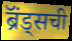
ब्रॅंड्सची